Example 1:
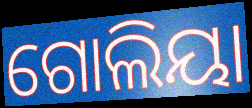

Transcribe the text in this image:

ଗୋଲିୟା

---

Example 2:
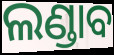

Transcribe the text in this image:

ଲଣ୍ଡାବ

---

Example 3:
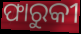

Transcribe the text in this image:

ଫାରୁକୀ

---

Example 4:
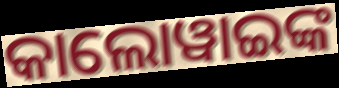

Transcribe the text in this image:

କାଲୋୱାଇଙ୍କ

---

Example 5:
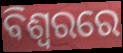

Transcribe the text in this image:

ବିଶ୍ବରରେ